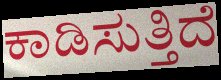
ಕಾಡಿಸುತ್ತಿದೆ